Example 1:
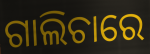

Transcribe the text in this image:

ଗାଲିଚାରେ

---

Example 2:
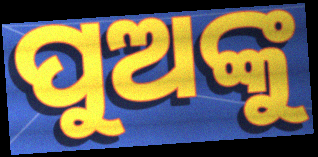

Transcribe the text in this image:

ପୁଅଙ୍କୁ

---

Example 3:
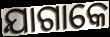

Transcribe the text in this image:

ଯାଗାକେ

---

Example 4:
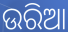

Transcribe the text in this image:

ଉରିଆ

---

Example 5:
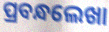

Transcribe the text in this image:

ପ୍ରବନ୍ଧଲେଖା